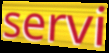
servi